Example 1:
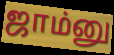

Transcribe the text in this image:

ஜாம்னு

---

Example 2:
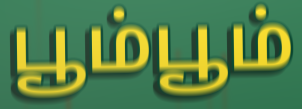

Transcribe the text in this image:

பூம்பூம்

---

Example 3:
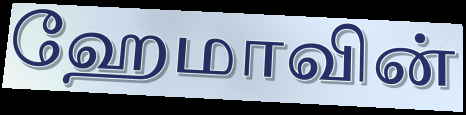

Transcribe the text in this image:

ஹேமாவின்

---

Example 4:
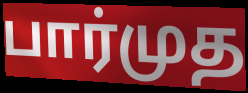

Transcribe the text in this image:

பார்முத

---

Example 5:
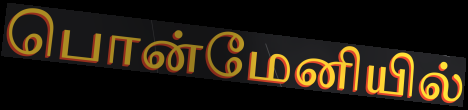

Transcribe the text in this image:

பொன்மேனியில்